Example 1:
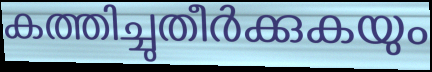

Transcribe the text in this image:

കത്തിച്ചുതീർക്കുകയും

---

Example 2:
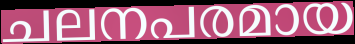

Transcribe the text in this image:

ചലനപരമായ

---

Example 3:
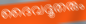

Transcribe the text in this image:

ദൈവദൂതരും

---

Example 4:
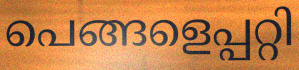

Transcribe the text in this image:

പെങ്ങളെപ്പറ്റി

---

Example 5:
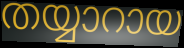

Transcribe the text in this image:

തയ്യാറായ